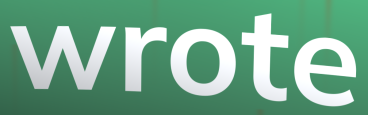
wrote